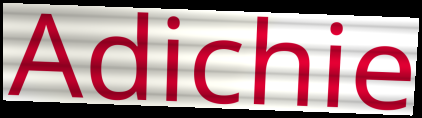
Adichie